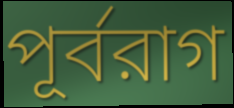
পূর্বরাগ